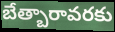
బేత్బారావరకు